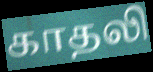
காதலி